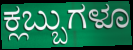
ಕ್ಲಬ್ಬುಗಳೂ